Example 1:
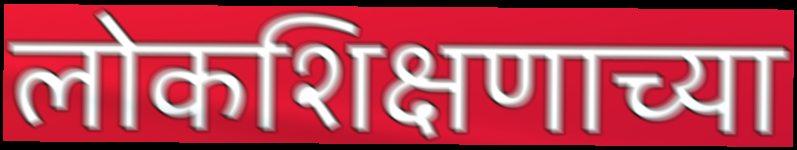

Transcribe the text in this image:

लोकशिक्षणाच्या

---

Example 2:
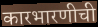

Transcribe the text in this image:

कारभारणीची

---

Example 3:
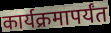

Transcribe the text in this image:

कार्यक्रमापर्यंत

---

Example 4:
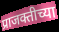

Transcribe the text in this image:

प्राजक्तीच्या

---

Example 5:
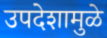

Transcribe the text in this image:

उपदेशामुळे